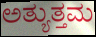
ಅತ್ಯುತ್ತಮ